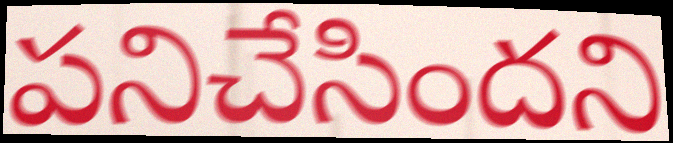
పనిచేసిందని